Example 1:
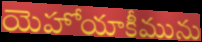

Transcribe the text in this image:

యెహోయాకీమును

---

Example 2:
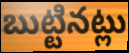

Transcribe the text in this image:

బుట్టినట్లు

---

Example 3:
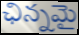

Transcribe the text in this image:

ఛిన్నమై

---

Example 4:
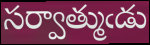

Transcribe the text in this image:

సర్వాత్ముఁడు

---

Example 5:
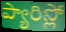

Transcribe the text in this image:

ప్యారిస్లో